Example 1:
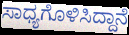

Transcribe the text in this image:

ಸಾಧ್ಯಗೊಳಿಸಿದ್ದಾನೆ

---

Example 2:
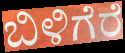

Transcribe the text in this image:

ಬಿಳಿಗೆರೆ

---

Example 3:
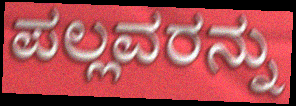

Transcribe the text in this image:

ಪಲ್ಲವರನ್ನು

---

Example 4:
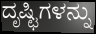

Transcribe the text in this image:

ದೃಷ್ಟಿಗಳನ್ನು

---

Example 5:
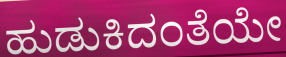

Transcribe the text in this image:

ಹುಡುಕಿದಂತೆಯೇ